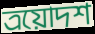
ত্রয়োদশ